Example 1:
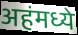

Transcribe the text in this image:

अहंमध्ये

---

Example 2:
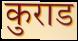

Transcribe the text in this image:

कुराड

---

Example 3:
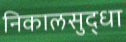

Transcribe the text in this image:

निकालसुद्धा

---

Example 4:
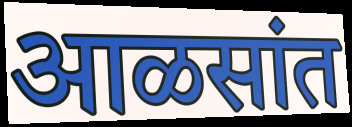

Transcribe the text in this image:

आळसांत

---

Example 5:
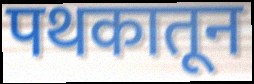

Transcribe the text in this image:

पथकातून